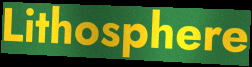
Lithosphere